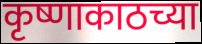
कृष्णाकाठच्या